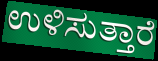
ಉಳಿಸುತ್ತಾರೆ